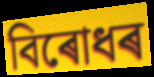
বিৰোধৰ